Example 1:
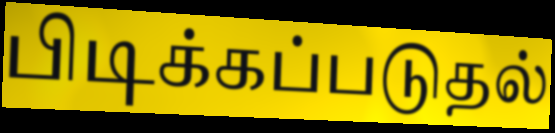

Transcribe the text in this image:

பிடிக்கப்படுதல்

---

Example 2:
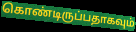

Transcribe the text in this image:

கொண்டிருப்பதாகவும்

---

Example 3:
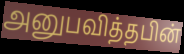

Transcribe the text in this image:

அனுபவித்தபின்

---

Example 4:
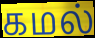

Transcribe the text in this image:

கமல்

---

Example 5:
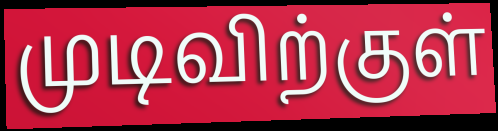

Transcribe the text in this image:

முடிவிற்குள்